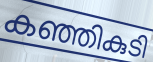
കഞ്ഞികുടി